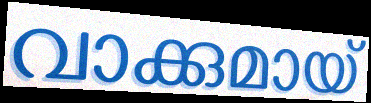
വാക്കുമായ്